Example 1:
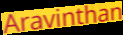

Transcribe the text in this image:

Aravinthan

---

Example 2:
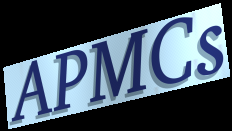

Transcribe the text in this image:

APMCs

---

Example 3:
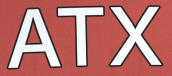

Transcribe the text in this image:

ATX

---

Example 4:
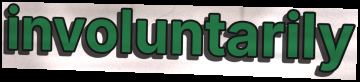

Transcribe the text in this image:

involuntarily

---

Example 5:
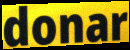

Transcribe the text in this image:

donar